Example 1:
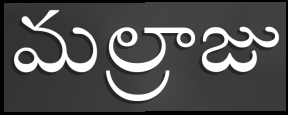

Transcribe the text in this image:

మల్రాజు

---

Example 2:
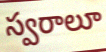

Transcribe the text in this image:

స్వరాలూ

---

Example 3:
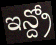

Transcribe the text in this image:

ఇన్ద్రో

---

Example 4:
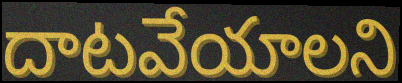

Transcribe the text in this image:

దాటవేయాలని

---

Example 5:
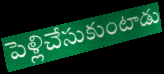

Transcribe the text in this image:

పెళ్లిచేసుకుంటాడు